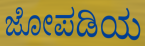
ಜೋಪಡಿಯ